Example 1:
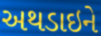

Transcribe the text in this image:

અથડાઇને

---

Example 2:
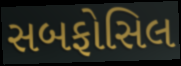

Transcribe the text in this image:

સબફોસિલ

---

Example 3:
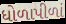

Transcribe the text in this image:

ધોળાપીળાં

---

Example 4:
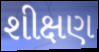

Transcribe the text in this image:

શીક્ષણ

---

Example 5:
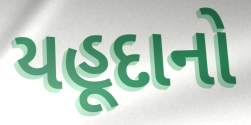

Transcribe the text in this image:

યહૂદાનો